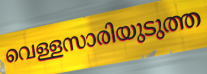
വെള്ളസാരിയുടുത്ത